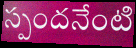
స్పందనేంటి